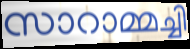
സാറാമ്മച്ചി